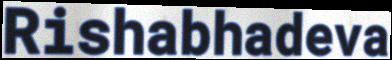
Rishabhadeva